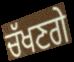
ਚੱਖਣਗੇ